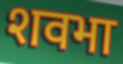
शवभा